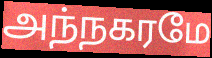
அந்நகரமே